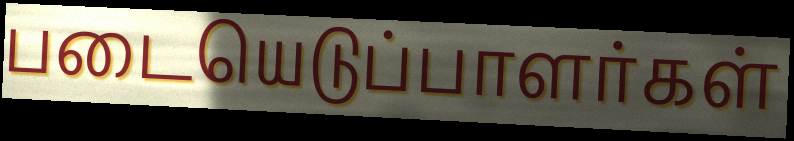
படையெடுப்பாளர்கள்